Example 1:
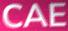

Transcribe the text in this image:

CAE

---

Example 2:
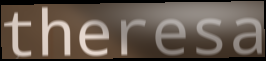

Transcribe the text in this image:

theresa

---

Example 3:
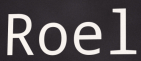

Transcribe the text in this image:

Roel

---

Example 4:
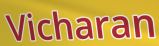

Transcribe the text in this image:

Vicharan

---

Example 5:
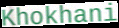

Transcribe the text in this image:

Khokhani